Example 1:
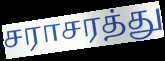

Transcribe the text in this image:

சராசரத்து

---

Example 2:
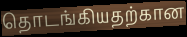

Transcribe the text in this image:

தொடங்கியதற்கான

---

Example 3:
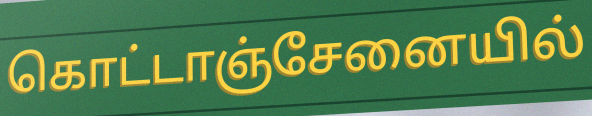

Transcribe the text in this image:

கொட்டாஞ்சேனையில்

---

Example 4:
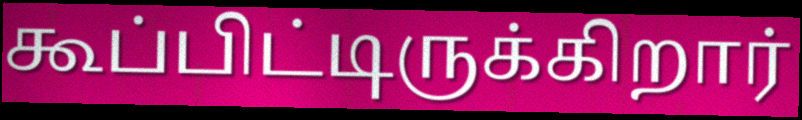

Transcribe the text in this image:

கூப்பிட்டிருக்கிறார்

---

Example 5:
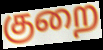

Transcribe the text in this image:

குறை